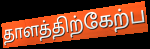
தாளத்திற்கேற்ப